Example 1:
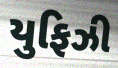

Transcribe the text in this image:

યુફિઝી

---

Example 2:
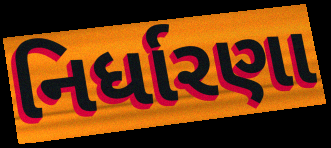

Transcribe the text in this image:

નિર્ધારણા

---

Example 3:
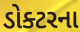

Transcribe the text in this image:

ડોક્ટરના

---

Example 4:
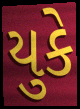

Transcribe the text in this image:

યુકે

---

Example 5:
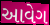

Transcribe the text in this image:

આવેગ